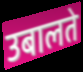
उबालते